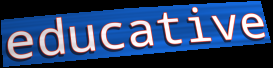
educative